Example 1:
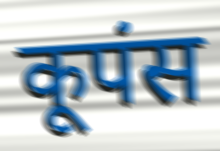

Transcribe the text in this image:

कूपंस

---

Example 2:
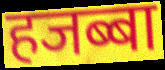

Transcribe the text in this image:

हजब्बा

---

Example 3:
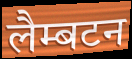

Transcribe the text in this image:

लैम्बटन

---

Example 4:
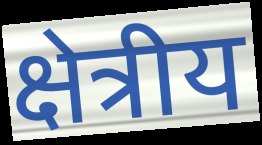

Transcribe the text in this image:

क्षेत्रीय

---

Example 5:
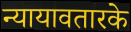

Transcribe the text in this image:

न्यायावतारके